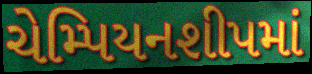
ચેમ્પિયનશીપમાં